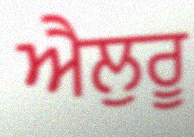
ਐਲੁਰੂ